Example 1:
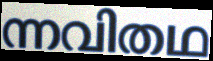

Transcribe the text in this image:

ന്നവിതഥ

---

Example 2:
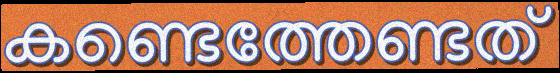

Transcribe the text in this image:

കണ്ടെത്തേണ്ടത്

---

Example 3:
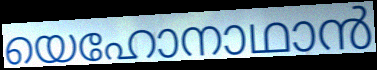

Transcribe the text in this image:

യെഹോനാഥാൻ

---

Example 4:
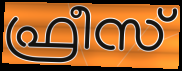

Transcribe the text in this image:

ഫ്രീസ്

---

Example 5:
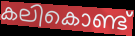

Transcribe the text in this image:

കലികൊണ്ട്